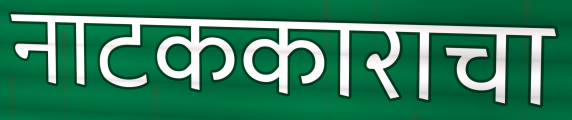
नाटककाराचा